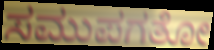
ಸಮುಪಗತೋ